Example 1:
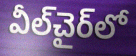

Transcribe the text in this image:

వీల్‌చైర్‌లో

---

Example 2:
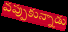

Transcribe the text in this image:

వప్పుకున్నాడు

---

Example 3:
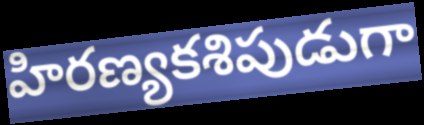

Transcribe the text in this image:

హిరణ్యకశిపుడుగా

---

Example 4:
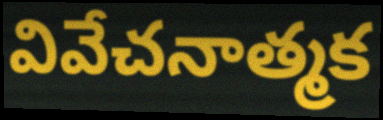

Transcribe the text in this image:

వివేచనాత్మక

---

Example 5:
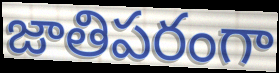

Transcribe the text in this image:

జాతిపరంగా